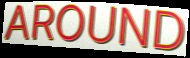
AROUND